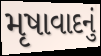
મૃષાવાદનું